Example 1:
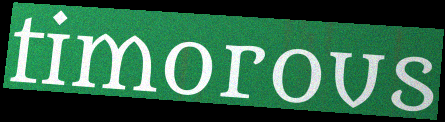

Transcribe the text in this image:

timorous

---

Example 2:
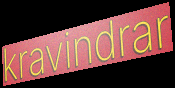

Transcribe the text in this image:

kravindrar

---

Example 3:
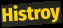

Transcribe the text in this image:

Histroy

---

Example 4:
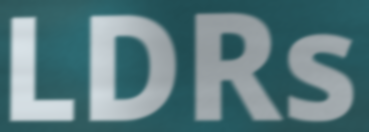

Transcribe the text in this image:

LDRs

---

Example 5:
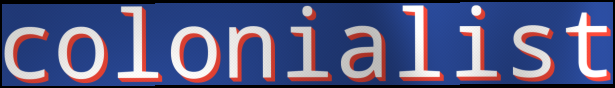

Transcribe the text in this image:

colonialist